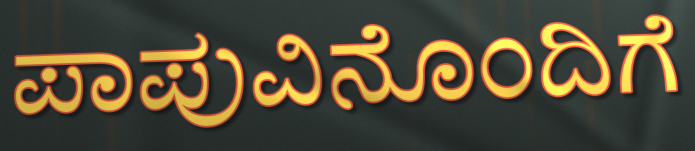
ಪಾಪುವಿನೊಂದಿಗೆ